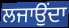
ਲਜਾਉਂਦਾ